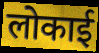
लोकाई